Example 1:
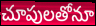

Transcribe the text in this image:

చూపులతోనూ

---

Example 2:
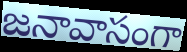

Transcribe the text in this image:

జనావాసంగా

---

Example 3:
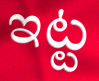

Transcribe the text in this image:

ఇట్ట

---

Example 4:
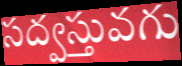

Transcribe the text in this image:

సద్వస్తువగు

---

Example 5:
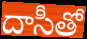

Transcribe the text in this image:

దాసీతో